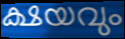
ക്ഷയവും